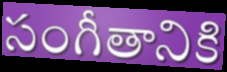
సంగీతానికి